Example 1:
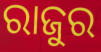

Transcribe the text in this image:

ରାଜୁର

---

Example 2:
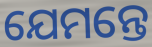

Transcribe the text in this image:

ଯେମନ୍ତେ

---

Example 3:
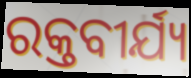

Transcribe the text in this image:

ରକ୍ତବୀର୍ଯ୍ୟ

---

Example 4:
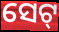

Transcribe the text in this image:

ସେଟ୍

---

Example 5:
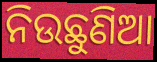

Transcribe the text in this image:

ନିଉଛୁଣିଆ